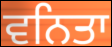
ਵਨਿਤਾ